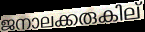
ജനാലക്കരുകില്